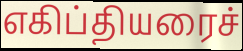
எகிப்தியரைச்